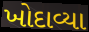
ખોદાવ્યા